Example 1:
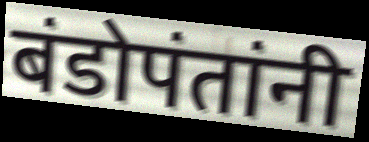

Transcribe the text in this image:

बंडोपंतांनी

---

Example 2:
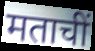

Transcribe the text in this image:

मताचीं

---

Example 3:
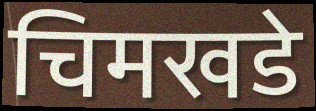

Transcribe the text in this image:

चिमखडे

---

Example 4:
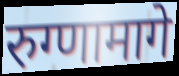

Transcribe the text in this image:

रुग्णामागे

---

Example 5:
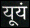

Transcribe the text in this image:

यूयं